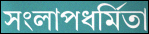
সংলাপধর্মিতা